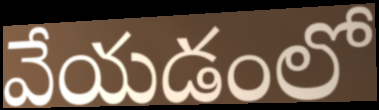
వేయడంలో